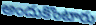
అందుకొంటారు